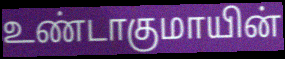
உண்டாகுமாயின்